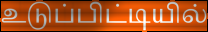
உடுப்பிட்டியில்